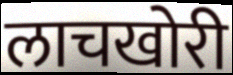
लाचखोरी